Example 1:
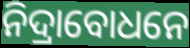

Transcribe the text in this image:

ନିଦ୍ରାବୋଧନେ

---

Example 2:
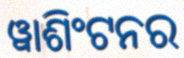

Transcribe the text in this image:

ୱାଶିଂଟନର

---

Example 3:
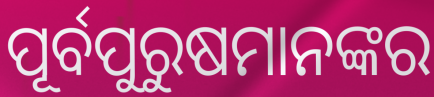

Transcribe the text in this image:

ପୂର୍ବପୁରୁଷମାନଙ୍କର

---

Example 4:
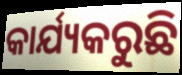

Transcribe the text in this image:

କାର୍ଯ୍ୟକରୁଛି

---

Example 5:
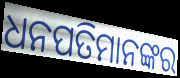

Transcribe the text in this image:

ଧନପତିମାନଙ୍କର